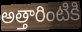
అత్తారింటికి